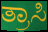
ತ್ರಾಸಿ